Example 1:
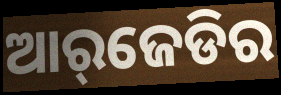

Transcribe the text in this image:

ଆର୍‌ଜେଡିର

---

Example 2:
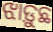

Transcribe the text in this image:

ଝାଡ଼ୁଛ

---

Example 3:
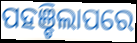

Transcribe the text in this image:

ପହଞ୍ଚିଲାପରେ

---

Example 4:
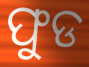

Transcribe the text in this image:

ଫୁଡ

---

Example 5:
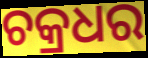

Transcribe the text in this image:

ଚକ୍ରଧର